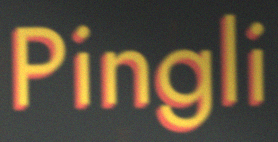
Pingli